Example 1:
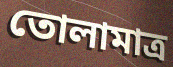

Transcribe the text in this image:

তোলামাত্র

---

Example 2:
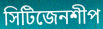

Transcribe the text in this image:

সিটিজেনশীপ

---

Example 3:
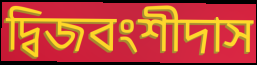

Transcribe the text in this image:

দ্বিজবংশীদাস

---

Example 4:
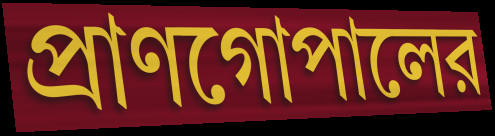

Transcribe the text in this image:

প্রাণগোপালের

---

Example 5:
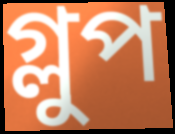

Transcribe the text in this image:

গ্লুপ